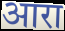
आरा